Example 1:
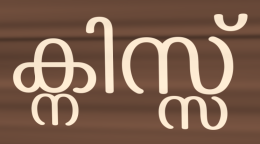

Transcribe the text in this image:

ക്നിസ്സ്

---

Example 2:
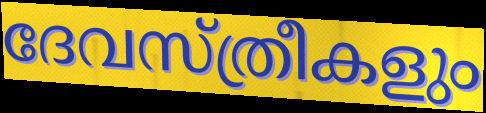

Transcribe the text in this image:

ദേവസ്ത്രീകളും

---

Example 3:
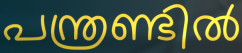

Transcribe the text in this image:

പന്ത്രണ്ടിൽ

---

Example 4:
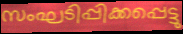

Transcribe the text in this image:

സംഘടിപ്പിക്കപ്പെട്ടു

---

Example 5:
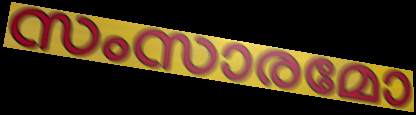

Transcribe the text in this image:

സംസാരമോ